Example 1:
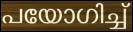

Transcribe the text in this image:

പയോഗിച്ച്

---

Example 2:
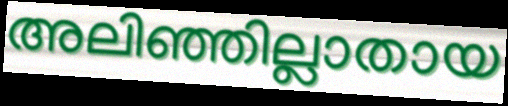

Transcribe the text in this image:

അലിഞ്ഞില്ലാതായ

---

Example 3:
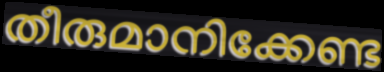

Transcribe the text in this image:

തീരുമാനിക്കേണ്ട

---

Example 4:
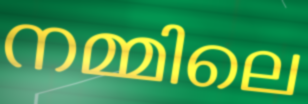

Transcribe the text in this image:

നമ്മിലെ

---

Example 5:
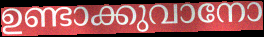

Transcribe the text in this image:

ഉണ്ടാക്കുവാനോ